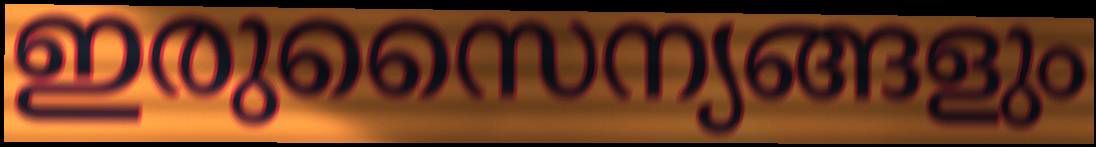
ഇരുസൈന്യങ്ങളും